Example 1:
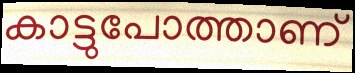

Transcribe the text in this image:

കാട്ടുപോത്താണ്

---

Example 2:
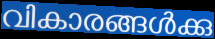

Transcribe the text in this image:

വികാരങ്ങൾക്കു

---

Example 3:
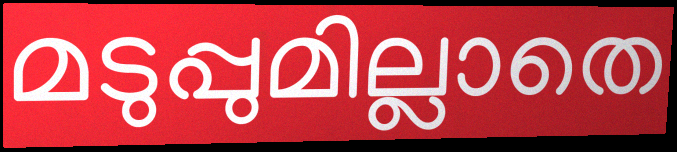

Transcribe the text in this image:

മടുപ്പുമില്ലാതെ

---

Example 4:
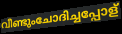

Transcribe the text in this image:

വീണ്ടുംചോദിച്ചപ്പോള്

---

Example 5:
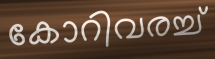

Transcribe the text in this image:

കോറിവരച്ച്